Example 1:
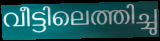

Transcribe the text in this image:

വീട്ടിലെത്തിച്ചു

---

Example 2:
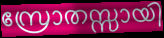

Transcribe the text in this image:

സ്രോതസ്സായി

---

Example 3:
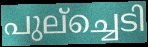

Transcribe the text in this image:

പുല്ച്ചെടി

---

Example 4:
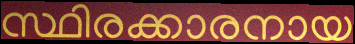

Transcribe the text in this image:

സ്ഥിരക്കാരനായ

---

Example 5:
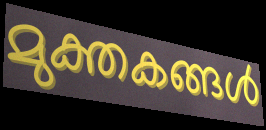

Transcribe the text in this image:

മുക്തകങ്ങൾ